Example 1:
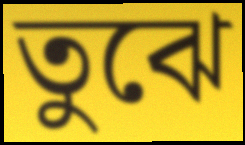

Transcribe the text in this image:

তুঝে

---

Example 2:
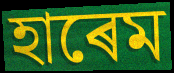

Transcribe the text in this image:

হাৰেম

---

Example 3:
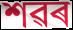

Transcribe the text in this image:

শৱৰ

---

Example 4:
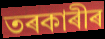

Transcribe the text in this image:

তৰকাৰীৰ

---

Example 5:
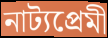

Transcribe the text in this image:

নাট্যপ্ৰেমী